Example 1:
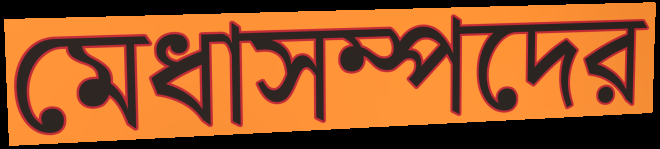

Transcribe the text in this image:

মেধাসম্পদের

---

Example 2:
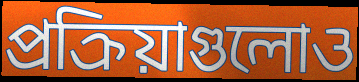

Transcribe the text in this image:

প্রক্রিয়াগুলোও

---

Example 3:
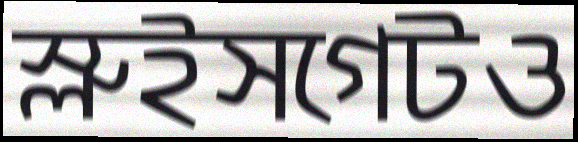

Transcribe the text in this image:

স্লুইসগেটও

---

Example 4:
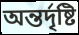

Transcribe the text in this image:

অন্তর্দৃষ্টি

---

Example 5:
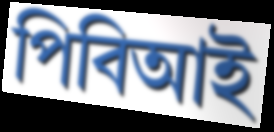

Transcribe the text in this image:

পিবিআই